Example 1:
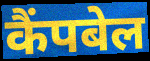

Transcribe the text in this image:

कैंपबेल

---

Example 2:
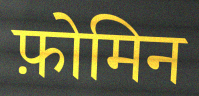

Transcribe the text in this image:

फ़ोमिन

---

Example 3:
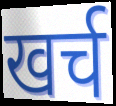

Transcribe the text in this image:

खर्च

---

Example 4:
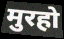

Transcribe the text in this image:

मुरहो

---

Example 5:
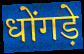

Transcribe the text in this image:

धोंगड़े